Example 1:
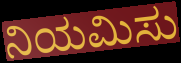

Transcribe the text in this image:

ನಿಯಮಿಸು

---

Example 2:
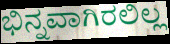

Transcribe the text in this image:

ಭಿನ್ನವಾಗಿರಲಿಲ್ಲ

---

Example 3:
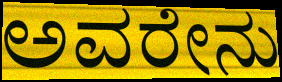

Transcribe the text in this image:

ಅವರೇನು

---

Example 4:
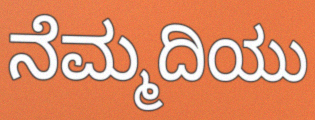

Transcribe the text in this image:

ನೆಮ್ಮದಿಯು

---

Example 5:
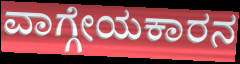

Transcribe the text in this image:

ವಾಗ್ಗೇಯಕಾರನ